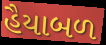
હૈયાબળ